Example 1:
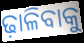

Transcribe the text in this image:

ଢ଼ାଳିବାକୁ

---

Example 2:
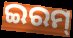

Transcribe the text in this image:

ଇରମ୍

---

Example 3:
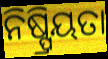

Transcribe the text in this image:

ନିଷ୍ପ୍ରିୟତା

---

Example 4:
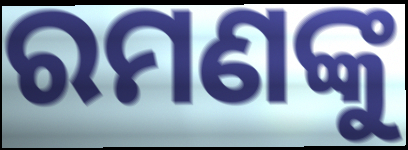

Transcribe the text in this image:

ରମଣଙ୍କୁ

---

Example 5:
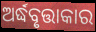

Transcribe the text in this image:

ଅର୍ଦ୍ଧବୃତ୍ତାକାର